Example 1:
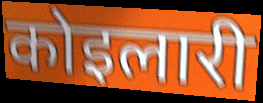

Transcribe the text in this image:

कोइलारी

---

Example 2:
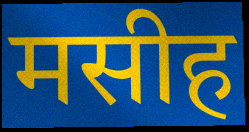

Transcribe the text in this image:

मसीह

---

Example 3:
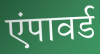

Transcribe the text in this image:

एंपावर्ड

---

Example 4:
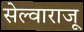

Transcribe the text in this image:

सेल्वाराजू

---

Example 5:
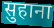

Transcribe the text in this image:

सुहाना